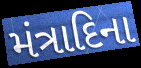
મંત્રાદિના